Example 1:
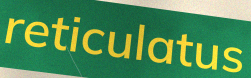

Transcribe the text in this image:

reticulatus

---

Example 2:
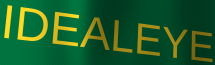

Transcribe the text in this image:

IDEALEYE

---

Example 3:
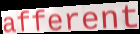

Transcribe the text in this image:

afferent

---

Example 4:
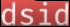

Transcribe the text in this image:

dsid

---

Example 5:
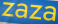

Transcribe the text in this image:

zaza